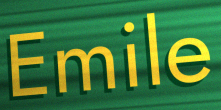
Emile